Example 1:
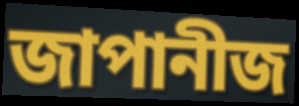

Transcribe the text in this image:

জাপানীজ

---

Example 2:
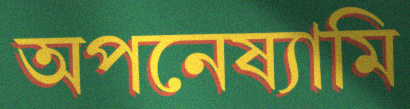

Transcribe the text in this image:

অপনেষ্যামি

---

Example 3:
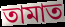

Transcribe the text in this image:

তামাত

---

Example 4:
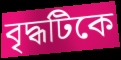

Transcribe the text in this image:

বৃদ্ধটিকে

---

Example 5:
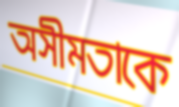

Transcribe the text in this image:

অসীমতাকে